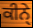
ਕੀਨੇੑ